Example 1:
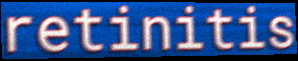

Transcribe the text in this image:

retinitis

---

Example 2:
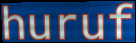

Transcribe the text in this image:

huruf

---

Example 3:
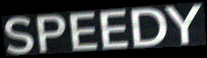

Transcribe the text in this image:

SPEEDY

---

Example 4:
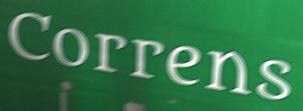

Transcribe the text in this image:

Correns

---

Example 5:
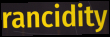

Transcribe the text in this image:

rancidity